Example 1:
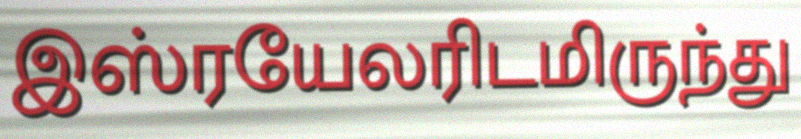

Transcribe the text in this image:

இஸ்ரயேலரிடமிருந்து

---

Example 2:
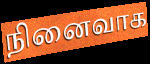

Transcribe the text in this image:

நினைவாக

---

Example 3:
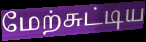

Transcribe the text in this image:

மேற்சுட்டிய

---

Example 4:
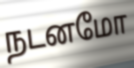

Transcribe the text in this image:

நடனமோ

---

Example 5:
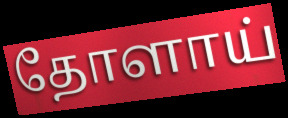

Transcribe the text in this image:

தோளாய்